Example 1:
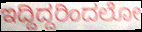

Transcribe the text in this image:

ಇದ್ದಿದ್ದರಿಂದಲೋ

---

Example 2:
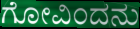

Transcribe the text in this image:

ಗೋವಿಂದನು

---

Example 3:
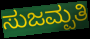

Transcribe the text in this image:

ಸುಜಮ್ಪತಿ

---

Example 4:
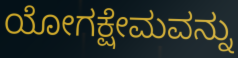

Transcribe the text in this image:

ಯೋಗಕ್ಷೇಮವನ್ನು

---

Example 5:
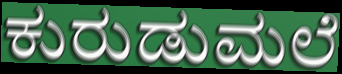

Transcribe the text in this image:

ಕುರುಡುಮಲೆ